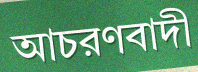
আচরণবাদী